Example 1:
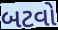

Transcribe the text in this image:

બટવો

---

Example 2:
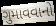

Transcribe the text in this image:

ગુમાવવાનો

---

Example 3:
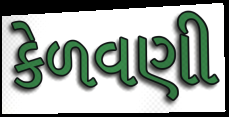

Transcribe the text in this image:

કેળવણી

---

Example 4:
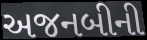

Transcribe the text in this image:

અજનબીની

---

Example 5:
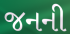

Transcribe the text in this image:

જનની